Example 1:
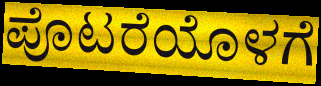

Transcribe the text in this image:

ಪೊಟರೆಯೊಳಗೆ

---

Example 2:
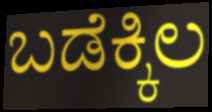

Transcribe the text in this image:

ಬಡೆಕ್ಕಿಲ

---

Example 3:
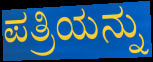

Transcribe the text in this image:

ಪತ್ರಿಯನ್ನು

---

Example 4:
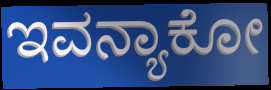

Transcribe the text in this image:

ಇವನ್ಯಾಕೋ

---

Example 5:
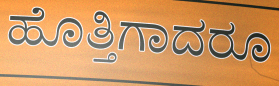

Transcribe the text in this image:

ಹೊತ್ತಿಗಾದರೂ